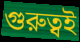
গুরুত্বই